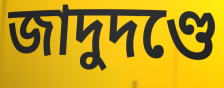
জাদুদণ্ডে